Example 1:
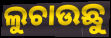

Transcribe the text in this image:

ଲୁଚାଉଛୁ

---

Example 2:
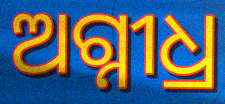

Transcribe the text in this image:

ଅଗ୍ନୀଧ୍ର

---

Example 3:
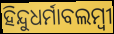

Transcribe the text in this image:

ହିନ୍ଦୁଧର୍ମାବଲମ୍ବୀ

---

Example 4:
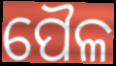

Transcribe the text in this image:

ପୈଳ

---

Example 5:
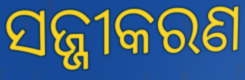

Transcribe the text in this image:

ସଜ୍ଜୀକରଣ